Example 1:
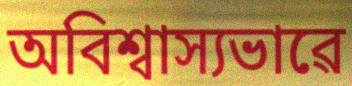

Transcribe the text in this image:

অবিশ্বাস্যভাৱে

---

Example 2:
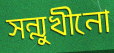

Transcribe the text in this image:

সন্মুখীনো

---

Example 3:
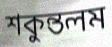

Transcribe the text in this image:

শকুন্তলম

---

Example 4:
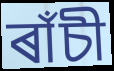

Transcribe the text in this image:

ৰাঁচী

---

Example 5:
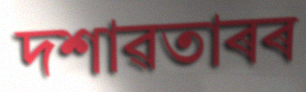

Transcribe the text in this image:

দশাৱতাৰৰ